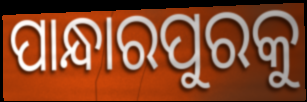
ପାନ୍ଧାରପୁରକୁ